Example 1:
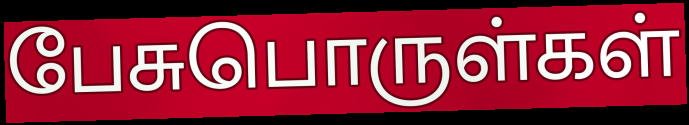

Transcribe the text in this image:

பேசுபொருள்கள்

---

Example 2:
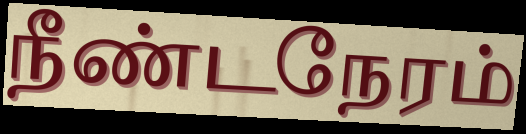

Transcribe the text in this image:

நீண்டநேரம்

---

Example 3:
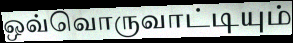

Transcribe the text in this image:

ஒவ்வொருவாட்டியும்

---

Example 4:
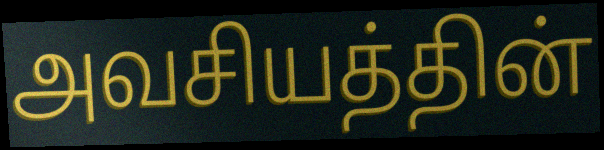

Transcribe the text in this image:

அவசியத்தின்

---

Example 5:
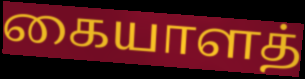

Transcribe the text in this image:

கையாளத்